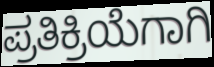
ಪ್ರತಿಕ್ರಿಯೆಗಾಗಿ